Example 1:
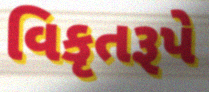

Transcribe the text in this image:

વિકૃતરૂપે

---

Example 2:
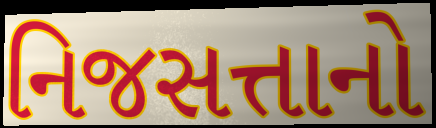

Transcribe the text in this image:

નિજસત્તાનો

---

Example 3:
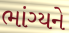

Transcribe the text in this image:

ભાંગ્યને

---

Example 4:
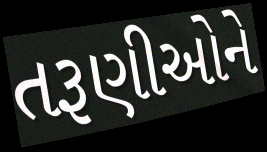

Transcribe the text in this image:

તરૂણીઓને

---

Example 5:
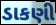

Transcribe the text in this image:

ડાકણી